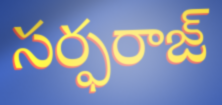
సర్ఫరాజ్